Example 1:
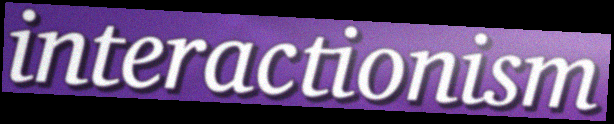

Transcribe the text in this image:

interactionism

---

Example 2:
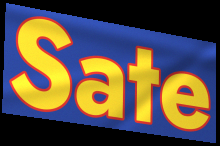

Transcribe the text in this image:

Sate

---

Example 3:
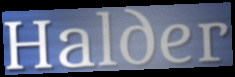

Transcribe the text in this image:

Halder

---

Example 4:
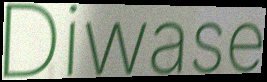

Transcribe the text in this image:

Diwase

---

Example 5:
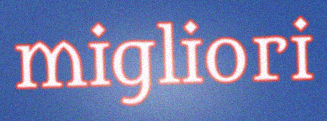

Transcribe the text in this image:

migliori